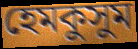
হেমকুসুম